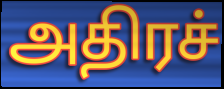
அதிரச்